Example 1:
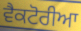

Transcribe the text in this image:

ਵੈਕਟੋਰੀਆ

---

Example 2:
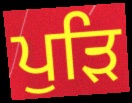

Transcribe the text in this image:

ਪੁੜਿ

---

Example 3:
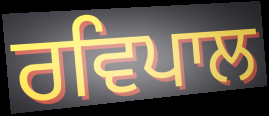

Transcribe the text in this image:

ਰਵਿਪਾਲ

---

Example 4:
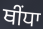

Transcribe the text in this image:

ਥੀਂਧਾ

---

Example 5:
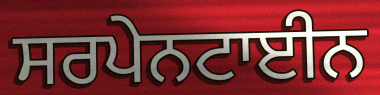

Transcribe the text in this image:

ਸਰਪੇਨਟਾਈਨ